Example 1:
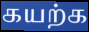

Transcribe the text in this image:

கயற்க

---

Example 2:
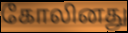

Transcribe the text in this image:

கோலினது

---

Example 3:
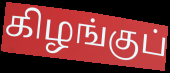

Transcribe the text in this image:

கிழங்குப்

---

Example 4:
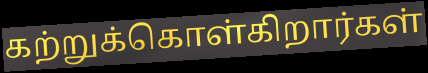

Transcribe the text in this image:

கற்றுக்கொள்கிறார்கள்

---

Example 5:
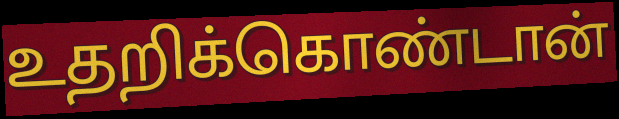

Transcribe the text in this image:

உதறிக்கொண்டான்